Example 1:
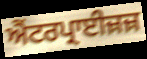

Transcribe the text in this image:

ਐਂਟਰਪ੍ਰਾਈਜ਼ਜ਼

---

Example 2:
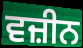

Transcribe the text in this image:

ਵਜ਼ੀਨ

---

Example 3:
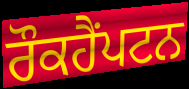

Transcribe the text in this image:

ਰੌਕਹੈਂਪਟਨ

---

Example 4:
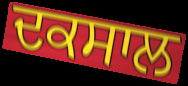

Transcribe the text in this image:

ਦਕਸਾਲ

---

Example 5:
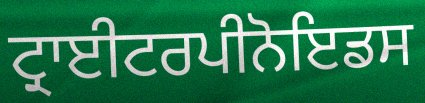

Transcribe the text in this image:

ਟ੍ਰਾਈਟਰਪੀਨੋਇਡਸ